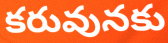
కరువునకు